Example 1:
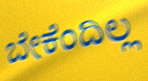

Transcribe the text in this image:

ಬೇಕೆಂದಿಲ್ಲ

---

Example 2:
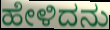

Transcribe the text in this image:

ಹೇಳಿದನು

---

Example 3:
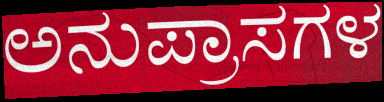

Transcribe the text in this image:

ಅನುಪ್ರಾಸಗಳ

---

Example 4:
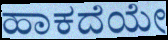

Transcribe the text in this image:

ಹಾಕದೆಯೇ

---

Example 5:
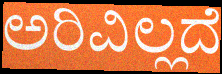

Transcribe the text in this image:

ಅರಿವಿಲ್ಲದೆ